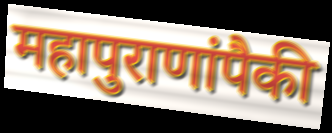
महापुराणांपैकी